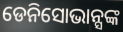
ଡେନିସୋଭାନ୍ସଙ୍କ